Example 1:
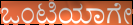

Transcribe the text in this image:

ಒಂಟಿಯಾಗೇ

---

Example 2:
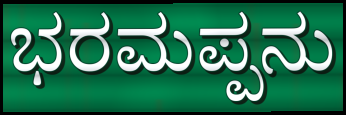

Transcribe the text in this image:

ಭರಮಪ್ಪನು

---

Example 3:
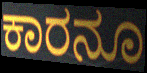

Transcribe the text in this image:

ಕಾರನೂ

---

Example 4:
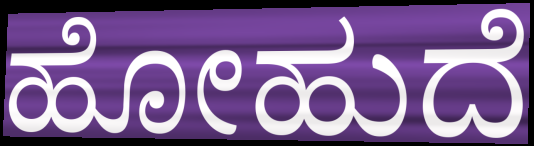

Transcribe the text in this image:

ಹೋಹುದೆ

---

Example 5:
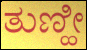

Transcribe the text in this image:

ತುಣ್ಹೀ